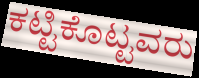
ಕಟ್ಟಿಕೊಟ್ಟವರು